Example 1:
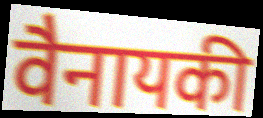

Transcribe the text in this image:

वैनायकी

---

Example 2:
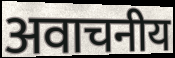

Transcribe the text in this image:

अवाचनीय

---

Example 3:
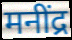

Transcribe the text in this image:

मनींद्र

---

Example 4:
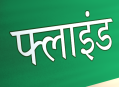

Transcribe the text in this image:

फ्लाइंड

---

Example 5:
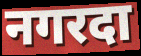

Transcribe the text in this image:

नगरदा